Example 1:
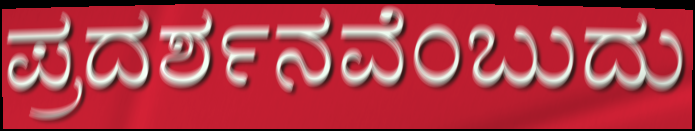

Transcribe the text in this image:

ಪ್ರದರ್ಶನವೆಂಬುದು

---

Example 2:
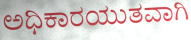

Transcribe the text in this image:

ಅಧಿಕಾರಯುತವಾಗಿ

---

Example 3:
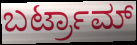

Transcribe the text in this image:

ಬರ್ಟ್ರಾಮ್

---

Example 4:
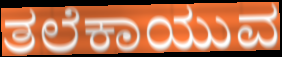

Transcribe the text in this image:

ತಲೆಕಾಯುವ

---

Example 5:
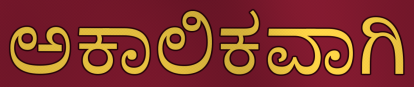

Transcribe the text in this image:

ಅಕಾಲಿಕವಾಗಿ